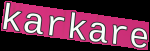
karkare